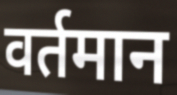
वर्तमान